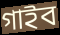
গাইব